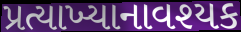
પ્રત્યાખ્યાનાવશ્યક